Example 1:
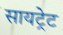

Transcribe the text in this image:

सायट्रेट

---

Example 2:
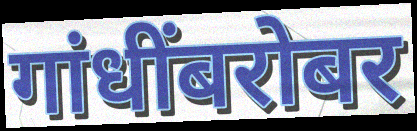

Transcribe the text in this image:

गांधींबरोबर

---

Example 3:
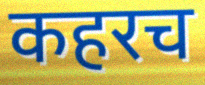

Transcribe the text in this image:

कहरच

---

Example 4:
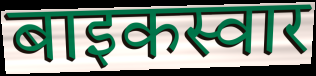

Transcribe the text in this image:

बाइकस्वार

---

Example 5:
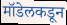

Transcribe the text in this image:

मॉडेलकडून